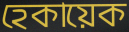
হেকায়েক